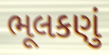
ભૂલકણું